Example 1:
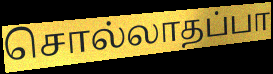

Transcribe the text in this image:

சொல்லாதப்பா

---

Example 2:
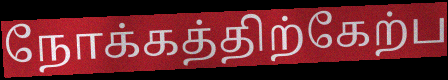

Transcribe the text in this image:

நோக்கத்திற்கேற்ப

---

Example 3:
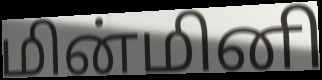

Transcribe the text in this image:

மின்மினி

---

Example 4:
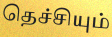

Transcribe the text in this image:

தெச்சியும்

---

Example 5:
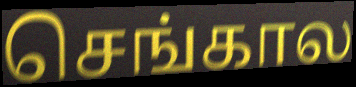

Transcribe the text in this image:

செங்கால